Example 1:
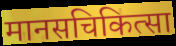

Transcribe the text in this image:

मानसचिकित्सा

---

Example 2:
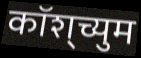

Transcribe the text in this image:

कॉश्च्युम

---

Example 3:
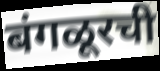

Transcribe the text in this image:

बंगळूरची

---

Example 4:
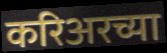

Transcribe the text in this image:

करिअरच्या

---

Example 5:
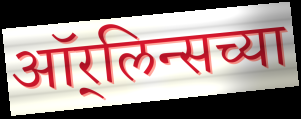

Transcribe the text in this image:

ऑर्लिन्सच्या